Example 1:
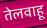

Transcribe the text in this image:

तेलवाहू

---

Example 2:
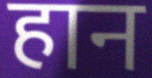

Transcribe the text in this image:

हान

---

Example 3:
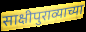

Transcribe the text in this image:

साक्षीपुराव्याच्या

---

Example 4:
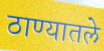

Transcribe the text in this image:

ठाण्यातले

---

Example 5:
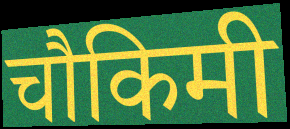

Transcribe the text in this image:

चौकिमी